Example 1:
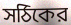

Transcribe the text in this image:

সঠিকের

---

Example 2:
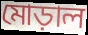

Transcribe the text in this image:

মোড়াল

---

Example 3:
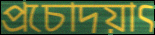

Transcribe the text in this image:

প্রচোদয়াৎ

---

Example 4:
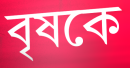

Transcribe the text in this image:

বৃষকে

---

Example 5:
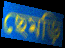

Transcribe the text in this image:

ছেমড়ি